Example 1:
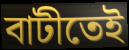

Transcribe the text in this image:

বাটীতেই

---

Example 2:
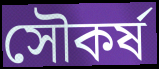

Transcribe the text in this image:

সৌকর্ষ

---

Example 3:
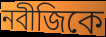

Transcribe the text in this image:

নবীজিকে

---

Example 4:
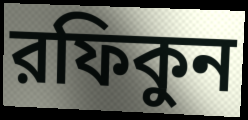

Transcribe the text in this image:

রফিকুন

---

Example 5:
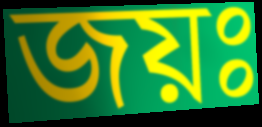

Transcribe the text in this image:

জয়ঃ